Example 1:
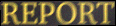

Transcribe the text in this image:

REPORT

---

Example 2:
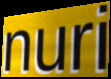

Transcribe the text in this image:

nuri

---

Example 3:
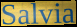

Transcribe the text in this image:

Salvia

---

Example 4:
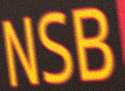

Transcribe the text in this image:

NSB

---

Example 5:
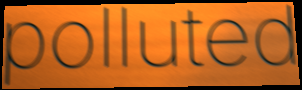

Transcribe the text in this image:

polluted